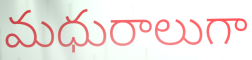
మధురాలుగా